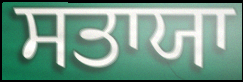
ਸਤਾਯਾ